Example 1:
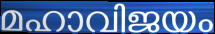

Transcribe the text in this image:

മഹാവിജയം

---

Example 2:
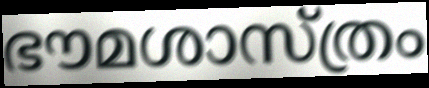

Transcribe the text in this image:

ഭൗമശാസ്ത്രം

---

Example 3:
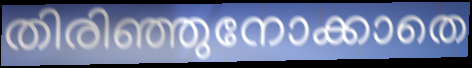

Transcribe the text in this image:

തിരിഞ്ഞുനോക്കാതെ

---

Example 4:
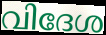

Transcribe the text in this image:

വിദേശ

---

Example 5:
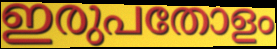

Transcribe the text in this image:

ഇരുപതോളം